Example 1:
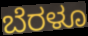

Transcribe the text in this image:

ಬೆರಳೂ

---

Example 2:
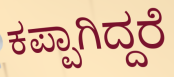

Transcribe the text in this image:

ಕಪ್ಪಾಗಿದ್ದರೆ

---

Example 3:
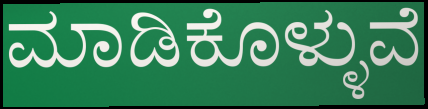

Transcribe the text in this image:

ಮಾಡಿಕೊಳ್ಳುವೆ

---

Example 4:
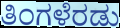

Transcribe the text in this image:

ತಿಂಗಳೆರಡು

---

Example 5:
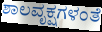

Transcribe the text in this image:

ಶಾಲವೃಕ್ಷಗಳಂತೆ